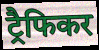
ट्रैफिकर